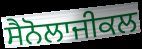
ਸੈਨੋਲਾਜੀਕਲ